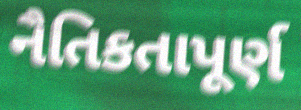
નૈતિકતાપૂર્ણ